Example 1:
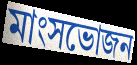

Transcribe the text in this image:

মাংসভোজন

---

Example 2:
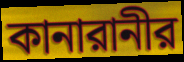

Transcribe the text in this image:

কানারানীর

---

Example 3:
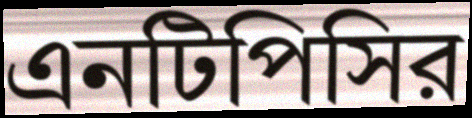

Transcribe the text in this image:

এনটিপিসির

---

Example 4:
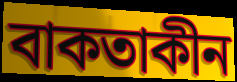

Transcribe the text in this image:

বাকতাকীন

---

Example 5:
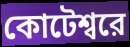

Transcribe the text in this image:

কোটেশ্বরে